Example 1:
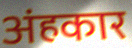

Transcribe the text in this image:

अंहकार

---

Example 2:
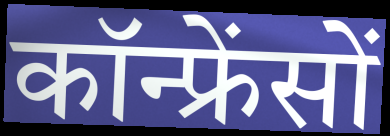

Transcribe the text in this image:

कॉन्फ्रेंसों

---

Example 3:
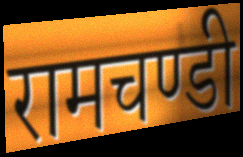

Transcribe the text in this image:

रामचण्डी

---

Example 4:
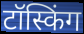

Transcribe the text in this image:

टॉस्किंग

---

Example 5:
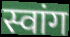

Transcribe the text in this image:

स्‍वांग